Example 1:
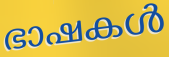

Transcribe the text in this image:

ഭാഷകൾ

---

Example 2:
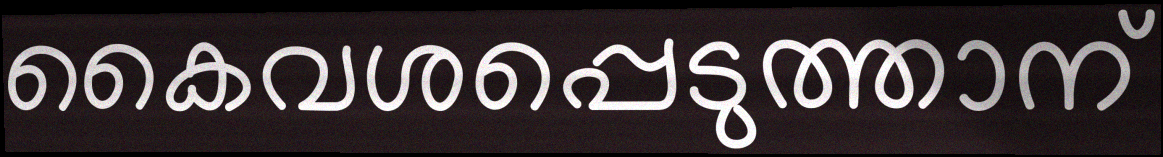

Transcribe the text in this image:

കൈവശപ്പെടുത്താന്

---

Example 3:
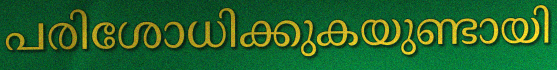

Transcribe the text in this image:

പരിശോധിക്കുകയുണ്ടായി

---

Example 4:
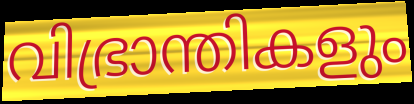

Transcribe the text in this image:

വിഭ്രാന്തികളും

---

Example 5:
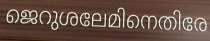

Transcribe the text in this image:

ജെറുശലേമിനെതിരേ